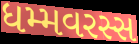
ધમ્મવરસ્સ